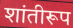
शांतीरूप